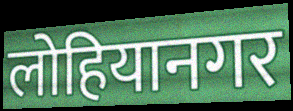
लोहियानगर